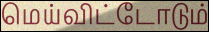
மெய்விட்டோடும்